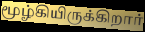
மூழ்கியிருக்கிறார்